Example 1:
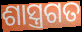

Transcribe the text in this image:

ଶାସ୍ତ୍ରଗତ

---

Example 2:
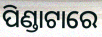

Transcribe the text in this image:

ପିଣ୍ଡାଟାରେ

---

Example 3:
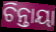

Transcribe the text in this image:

ଚିନ୍ତାୟା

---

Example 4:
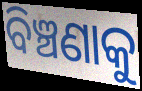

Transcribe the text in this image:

ବିଞ୍ଚଣାକୁ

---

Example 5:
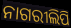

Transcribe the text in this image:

ନାଗରୀଲିପି